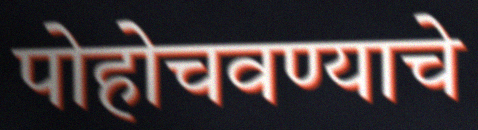
पोहोचवण्याचे